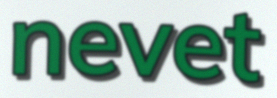
nevet